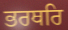
ਭਰਥਰਿ